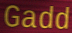
Gadd